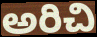
అరిచి